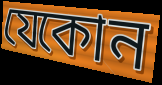
যেকোন